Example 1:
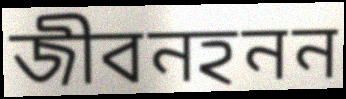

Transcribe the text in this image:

জীবনহনন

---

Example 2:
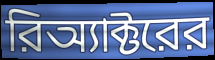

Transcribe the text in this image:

রিঅ্যাক্টরের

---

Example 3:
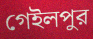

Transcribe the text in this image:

গেইলপুর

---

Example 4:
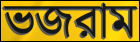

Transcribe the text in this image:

ভজরাম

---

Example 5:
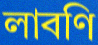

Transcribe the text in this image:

লাবণি